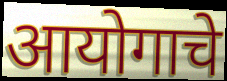
आयोगाचे